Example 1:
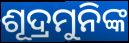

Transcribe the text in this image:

ଶୂଦ୍ରମୁନିଙ୍କ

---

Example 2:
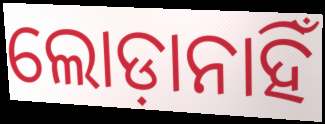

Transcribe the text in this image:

ଲୋଡ଼ାନାହିଁ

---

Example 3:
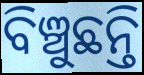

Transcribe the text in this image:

ବିଞ୍ଚୁଛନ୍ତି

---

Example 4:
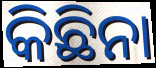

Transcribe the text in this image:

କିଛିନା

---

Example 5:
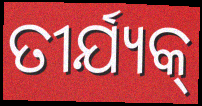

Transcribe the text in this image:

ତୀର୍ଯ୍ୟକ୍